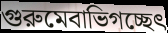
গুরুমেবাভিগচ্ছেৎ